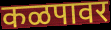
कळपावर